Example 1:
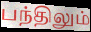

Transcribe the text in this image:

பந்திலும்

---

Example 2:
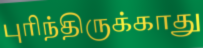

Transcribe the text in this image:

புரிந்திருக்காது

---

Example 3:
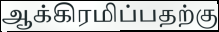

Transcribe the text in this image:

ஆக்கிரமிப்பதற்கு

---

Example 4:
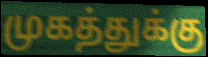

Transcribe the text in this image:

முகத்துக்கு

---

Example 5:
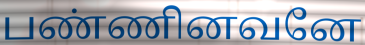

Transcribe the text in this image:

பண்ணினவனே